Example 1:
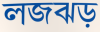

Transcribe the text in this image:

লজঝড়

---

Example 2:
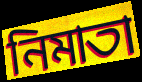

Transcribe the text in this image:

নিমাতা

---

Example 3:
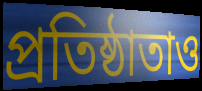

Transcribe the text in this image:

প্রতিষ্ঠাতাও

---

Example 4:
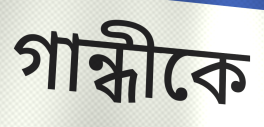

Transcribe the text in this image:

গান্ধীকে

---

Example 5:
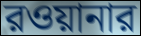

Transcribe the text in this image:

রওয়ানার